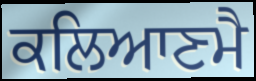
ਕਲਿਆਣਮੈ